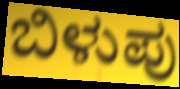
ಬಿಳುಪು